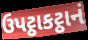
ઉપટ્ઠાકટ્ઠાનં